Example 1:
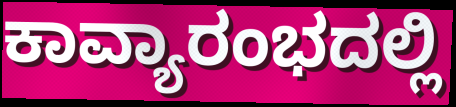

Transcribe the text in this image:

ಕಾವ್ಯಾರಂಭದಲ್ಲಿ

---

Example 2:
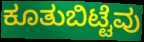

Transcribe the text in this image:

ಕೂತುಬಿಟ್ಟೆವು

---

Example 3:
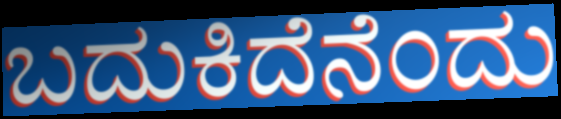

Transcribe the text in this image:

ಬದುಕಿದೆನೆಂದು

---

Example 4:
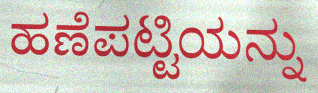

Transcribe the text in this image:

ಹಣೆಪಟ್ಟಿಯನ್ನು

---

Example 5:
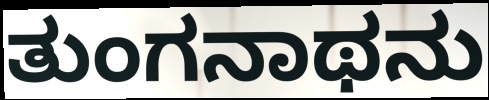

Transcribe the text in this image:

ತುಂಗನಾಥನು